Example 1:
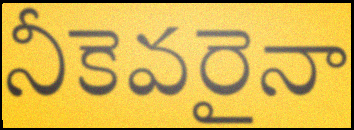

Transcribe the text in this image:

నీకెవరైనా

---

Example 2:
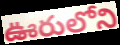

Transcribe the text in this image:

ఊరులోని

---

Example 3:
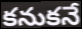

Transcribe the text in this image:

కనుకనే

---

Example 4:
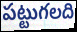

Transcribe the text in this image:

పట్టుగలది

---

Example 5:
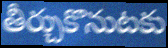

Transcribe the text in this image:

తీర్చుకొనుటకు